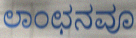
ಲಾಂಛನವೂ